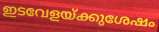
ഇടവേളയ്ക്കുശേഷം